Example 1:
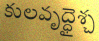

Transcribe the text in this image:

కులవృద్ధైశ్చ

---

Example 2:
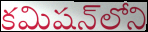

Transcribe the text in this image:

కమిషన్‌లోని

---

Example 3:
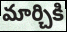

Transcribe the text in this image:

మార్చికి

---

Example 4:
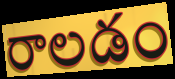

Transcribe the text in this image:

రాలడం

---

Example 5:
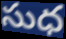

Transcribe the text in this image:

సుధ